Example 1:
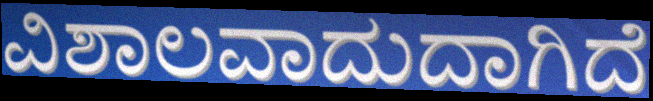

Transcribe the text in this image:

ವಿಶಾಲವಾದುದಾಗಿದೆ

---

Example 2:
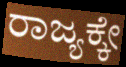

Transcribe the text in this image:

ರಾಜ್ಯಕ್ಕೇ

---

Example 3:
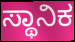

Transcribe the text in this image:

ಸ್ಥಾನಿಕ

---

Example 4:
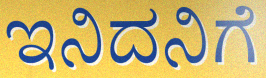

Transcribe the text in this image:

ಇನಿದನಿಗೆ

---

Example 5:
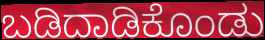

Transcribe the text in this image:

ಬಡಿದಾಡಿಕೊಂಡು